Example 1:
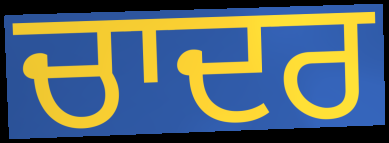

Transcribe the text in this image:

ਚਾਦਰ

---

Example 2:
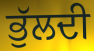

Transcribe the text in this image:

ਭੁੱਲਦੀ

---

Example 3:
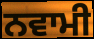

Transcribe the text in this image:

ਨਵਾਮੀ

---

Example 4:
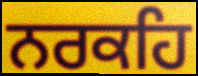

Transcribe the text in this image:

ਨਰਕਹਿ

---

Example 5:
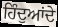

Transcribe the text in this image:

ਹਿੰਦੁਆਂਦੇ